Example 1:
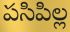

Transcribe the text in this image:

పసిపిల్ల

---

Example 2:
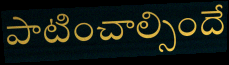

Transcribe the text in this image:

పాటించాల్సిందే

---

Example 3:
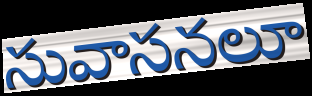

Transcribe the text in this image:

సువాసనలూ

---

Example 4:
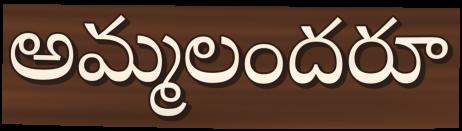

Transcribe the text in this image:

అమ్మలందరూ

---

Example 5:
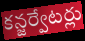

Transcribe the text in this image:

కన్జర్వేటర్లు